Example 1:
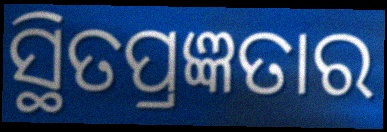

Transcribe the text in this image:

ସ୍ଥିତପ୍ରଜ୍ଞତାର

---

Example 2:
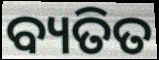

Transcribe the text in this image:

ବ୍ୟତିତ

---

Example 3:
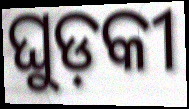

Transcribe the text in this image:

ଘୁଡ଼କୀ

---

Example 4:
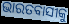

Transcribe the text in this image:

ଭାରତବାସୀକୁ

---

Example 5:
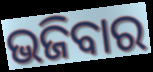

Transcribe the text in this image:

ଭଜିବାର